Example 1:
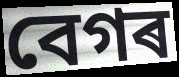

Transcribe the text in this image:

বেগৰ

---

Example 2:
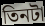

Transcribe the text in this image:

তিনটা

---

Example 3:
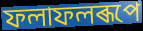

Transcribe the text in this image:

ফলাফলৰূপে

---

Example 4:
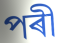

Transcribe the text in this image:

পৰী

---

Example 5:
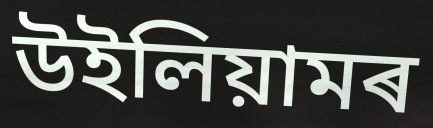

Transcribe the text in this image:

উইলিয়ামৰ